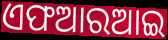
ଏଫଆରଆଇ